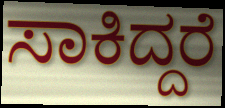
ಸಾಕಿದ್ದರೆ